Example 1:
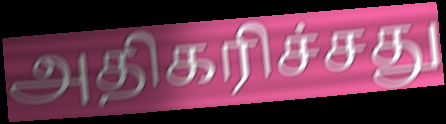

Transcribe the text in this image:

அதிகரிச்சது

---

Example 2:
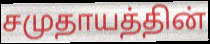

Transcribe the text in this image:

சமுதாயத்தின்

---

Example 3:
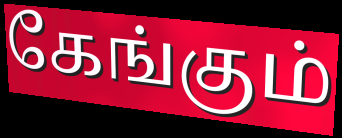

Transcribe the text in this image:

கேங்கும்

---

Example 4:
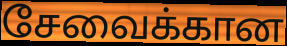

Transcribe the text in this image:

சேவைக்கான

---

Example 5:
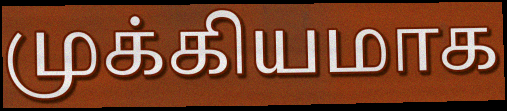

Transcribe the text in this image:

முக்கியமாக